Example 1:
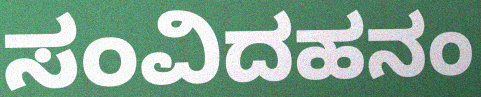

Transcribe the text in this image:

ಸಂವಿದಹನಂ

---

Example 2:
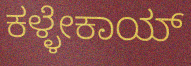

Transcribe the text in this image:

ಕಳ್ಳೇಕಾಯ್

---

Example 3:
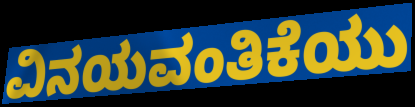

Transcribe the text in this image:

ವಿನಯವಂತಿಕೆಯು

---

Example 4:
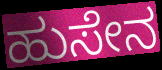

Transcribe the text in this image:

ಹುಸೇನ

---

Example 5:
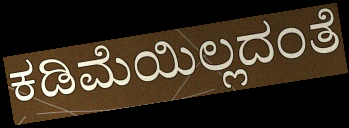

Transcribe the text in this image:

ಕಡಿಮೆಯಿಲ್ಲದಂತೆ